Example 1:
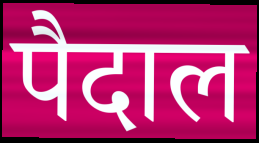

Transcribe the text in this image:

पैदाल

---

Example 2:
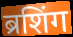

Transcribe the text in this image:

ब्रशिंग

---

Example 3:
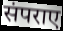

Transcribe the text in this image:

संपराए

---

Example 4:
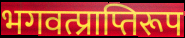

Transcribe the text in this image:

भगवत्प्राप्तिरूप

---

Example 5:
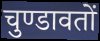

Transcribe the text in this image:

चुण्डावतों